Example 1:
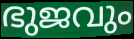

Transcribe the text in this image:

ഭുജവും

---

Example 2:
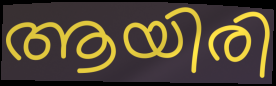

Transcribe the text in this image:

ആയിരി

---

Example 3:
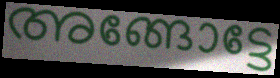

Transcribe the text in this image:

അങ്ങോട്ടേ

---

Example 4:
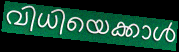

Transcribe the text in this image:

വിധിയെക്കാൾ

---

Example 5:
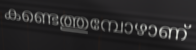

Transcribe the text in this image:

കണ്ടെത്തുമ്പോഴാണ്